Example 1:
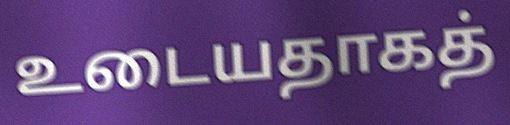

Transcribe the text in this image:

உடையதாகத்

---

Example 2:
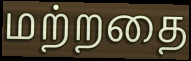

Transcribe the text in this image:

மற்றதை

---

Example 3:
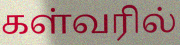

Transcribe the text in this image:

கள்வரில்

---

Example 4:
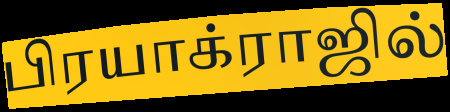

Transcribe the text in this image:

பிரயாக்ராஜில்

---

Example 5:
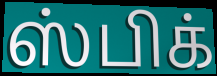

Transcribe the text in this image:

ஸ்பிக்